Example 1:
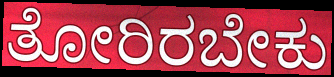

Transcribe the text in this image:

ತೋರಿರಬೇಕು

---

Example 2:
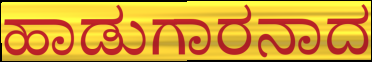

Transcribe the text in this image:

ಹಾಡುಗಾರನಾದ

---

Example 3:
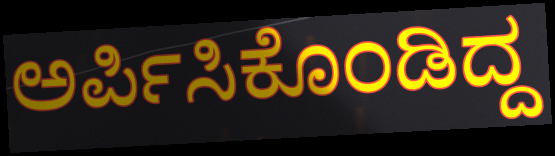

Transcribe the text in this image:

ಅರ್ಪಿಸಿಕೊಂಡಿದ್ದ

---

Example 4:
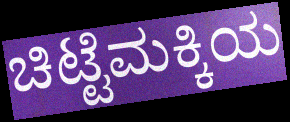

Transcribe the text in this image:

ಚಿಟ್ಟೆಮಕ್ಕಿಯ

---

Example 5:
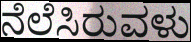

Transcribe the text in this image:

ನೆಲೆಸಿರುವಳು